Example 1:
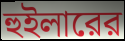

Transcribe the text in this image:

হুইলারের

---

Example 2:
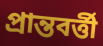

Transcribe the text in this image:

প্রান্তবর্ত্তী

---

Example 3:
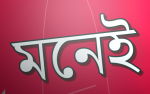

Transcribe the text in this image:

মনেই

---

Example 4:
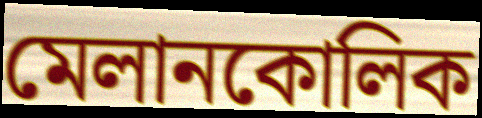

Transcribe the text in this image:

মেলানকোলিক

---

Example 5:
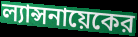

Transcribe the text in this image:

ল্যান্সনায়েকের